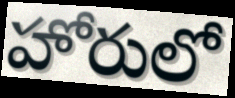
హోరులో